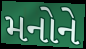
મનોને